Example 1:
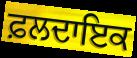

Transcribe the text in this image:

ਫ਼ਲਦਾਇਕ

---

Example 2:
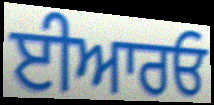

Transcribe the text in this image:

ਈਆਰਓ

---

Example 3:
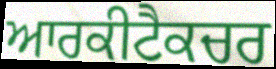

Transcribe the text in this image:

ਆਰਕੀਟੈਕਚਰ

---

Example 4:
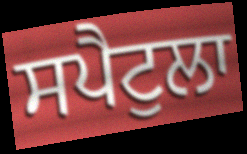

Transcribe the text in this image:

ਸਪੈਟੁਲਾ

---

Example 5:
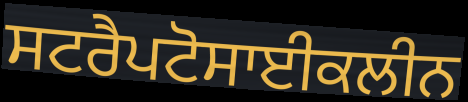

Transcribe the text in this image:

ਸਟਰੈਪਟੋਸਾਈਕਲੀਨ